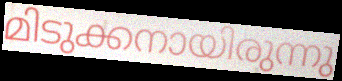
മിടുക്കനായിരുന്നു